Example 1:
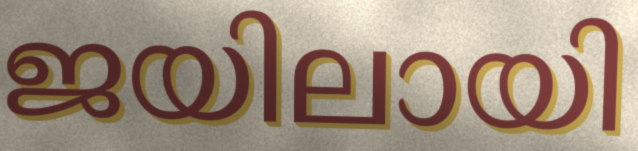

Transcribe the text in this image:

ജയിലായി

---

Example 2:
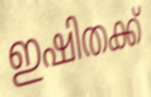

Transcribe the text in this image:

ഇഷിതക്ക്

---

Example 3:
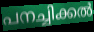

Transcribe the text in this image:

പനച്ചിക്കൽ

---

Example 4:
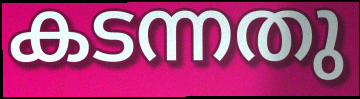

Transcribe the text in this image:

കടന്നതു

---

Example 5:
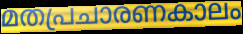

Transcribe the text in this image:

മതപ്രചാരണകാലം